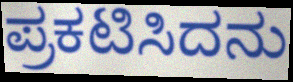
ಪ್ರಕಟಿಸಿದನು